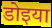
डोइया